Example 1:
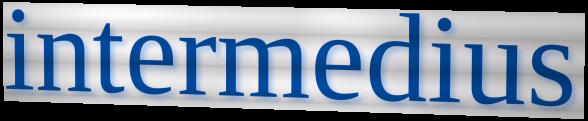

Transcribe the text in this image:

intermedius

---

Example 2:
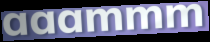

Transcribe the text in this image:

aaammm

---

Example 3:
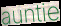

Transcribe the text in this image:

auntie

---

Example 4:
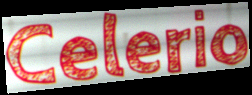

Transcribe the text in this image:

Celerio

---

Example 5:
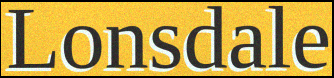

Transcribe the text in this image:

Lonsdale